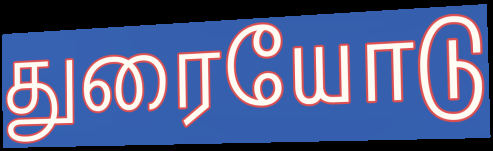
துரையோடு